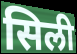
सिली